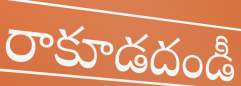
రాకూడదండీ